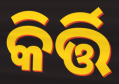
କିର୍ତ୍ତି